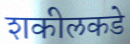
शकीलकडे